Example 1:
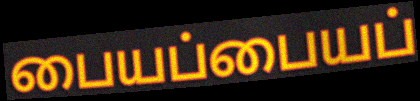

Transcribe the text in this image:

பையப்பையப்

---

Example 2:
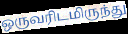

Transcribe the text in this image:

ஒருவரிடமிருந்து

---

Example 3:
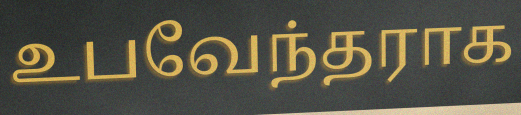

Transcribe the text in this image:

உபவேந்தராக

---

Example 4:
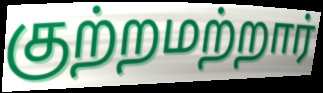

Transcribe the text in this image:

குற்றமற்றார்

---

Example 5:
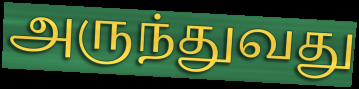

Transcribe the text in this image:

அருந்துவது